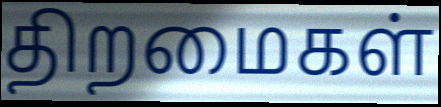
திறமைகள்